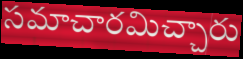
సమాచారమిచ్చారు